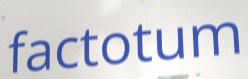
factotum